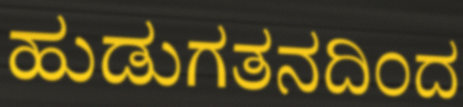
ಹುಡುಗತನದಿಂದ